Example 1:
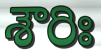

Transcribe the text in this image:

శౌరిః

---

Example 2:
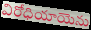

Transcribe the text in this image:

విరోధియాయెను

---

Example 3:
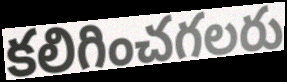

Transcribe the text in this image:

కలిగించగలరు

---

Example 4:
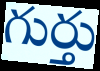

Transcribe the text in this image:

గుర్తు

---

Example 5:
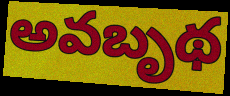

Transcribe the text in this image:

అవబృథ